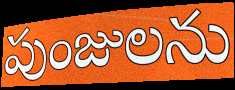
పుంజులను